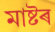
মাষ্টৰ